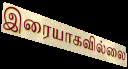
இரையாகவில்லை